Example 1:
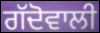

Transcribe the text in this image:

ਗੱਦੋਵਾਲੀ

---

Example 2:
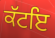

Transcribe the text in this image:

ਕੱਟਇ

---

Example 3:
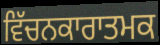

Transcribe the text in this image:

ਵਿੱਚਨਕਾਰਾਤਮਕ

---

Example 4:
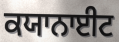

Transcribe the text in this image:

ਕਯਾਨਾਈਟ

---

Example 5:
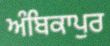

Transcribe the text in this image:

ਅੰਬਿਕਾਪੁਰ